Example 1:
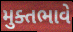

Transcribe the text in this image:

મુક્તભાવે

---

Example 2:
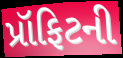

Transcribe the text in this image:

પ્રૉફિટની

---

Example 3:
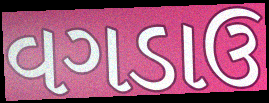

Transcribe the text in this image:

વગડાઉ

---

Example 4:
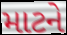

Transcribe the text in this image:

માટને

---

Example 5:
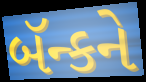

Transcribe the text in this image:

બૅન્કને